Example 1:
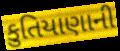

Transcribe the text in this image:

કુતિયાણાની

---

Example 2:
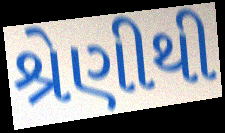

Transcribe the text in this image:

શ્રેણીથી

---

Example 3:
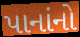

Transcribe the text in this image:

પાનાંનો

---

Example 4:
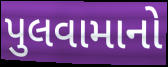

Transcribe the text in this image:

પુલવામાનો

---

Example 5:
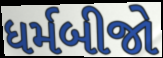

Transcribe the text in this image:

ધર્મબીજો